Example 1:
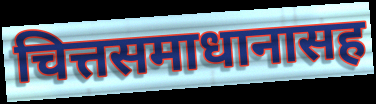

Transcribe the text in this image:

चित्तसमाधानासह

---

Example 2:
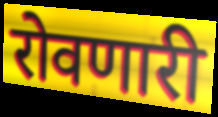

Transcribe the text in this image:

रोवणारी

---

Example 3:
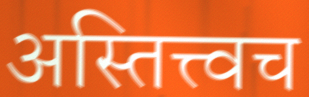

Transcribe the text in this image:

अस्तित्त्वच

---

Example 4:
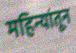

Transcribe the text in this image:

महिन्यांतून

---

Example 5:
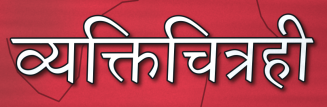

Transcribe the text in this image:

व्यक्तिचित्रही